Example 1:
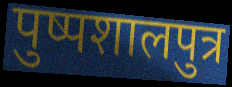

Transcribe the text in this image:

पुष्पशालपुत्र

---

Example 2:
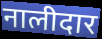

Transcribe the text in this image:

नालीदार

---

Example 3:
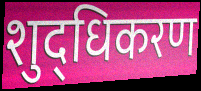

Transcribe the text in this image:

शुद्धिकरण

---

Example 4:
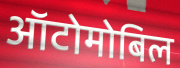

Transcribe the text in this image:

ऑटोमोबिल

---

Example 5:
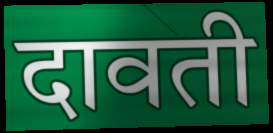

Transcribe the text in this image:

दावती